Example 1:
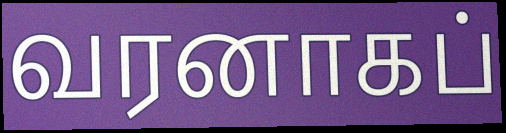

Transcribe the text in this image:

வரனாகப்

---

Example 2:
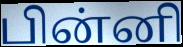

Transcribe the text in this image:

பின்னி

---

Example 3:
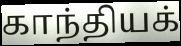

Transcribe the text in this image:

காந்தியக்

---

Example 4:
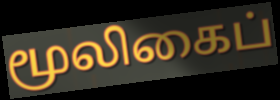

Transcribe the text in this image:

மூலிகைப்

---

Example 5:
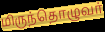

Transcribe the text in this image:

மிருந்தொழுவர்